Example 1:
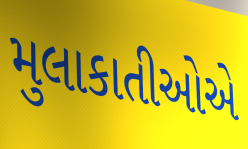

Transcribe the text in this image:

મુલાકાતીઓએ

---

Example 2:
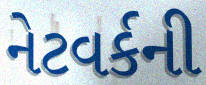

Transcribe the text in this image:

નેટવર્કની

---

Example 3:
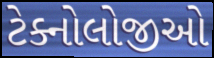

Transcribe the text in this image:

ટેક્નોલોજીઓ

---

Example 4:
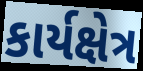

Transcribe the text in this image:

કાર્યક્ષેત્ર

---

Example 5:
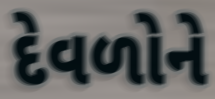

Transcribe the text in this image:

દેવળોને